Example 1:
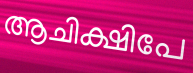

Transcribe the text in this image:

ആചിക്ഷിപേ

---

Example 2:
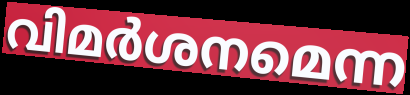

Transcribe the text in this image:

വിമർശനമെന്ന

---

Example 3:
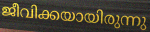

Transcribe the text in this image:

ജീവിക്കയായിരുന്നു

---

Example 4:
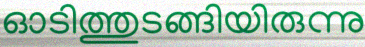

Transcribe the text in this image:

ഓടിത്തുടങ്ങിയിരുന്നു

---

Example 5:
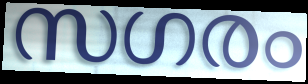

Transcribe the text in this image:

സഗരം